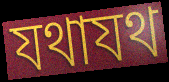
যথাযথ